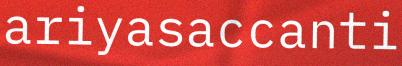
ariyasaccanti